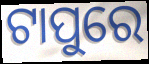
ଟାପୁରେ